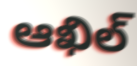
ఆఖిల్